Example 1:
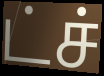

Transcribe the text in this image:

ட்ச்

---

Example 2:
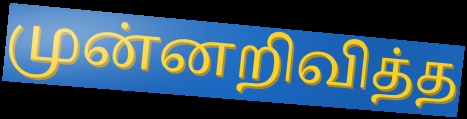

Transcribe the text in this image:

முன்னறிவித்த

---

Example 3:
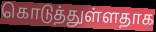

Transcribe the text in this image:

கொடுத்துள்ளதாக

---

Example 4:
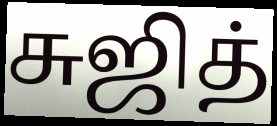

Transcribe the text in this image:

சுஜித்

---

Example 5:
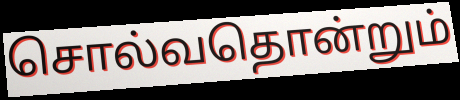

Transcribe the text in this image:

சொல்வதொன்றும்